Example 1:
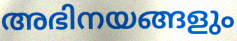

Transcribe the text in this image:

അഭിനയങ്ങളും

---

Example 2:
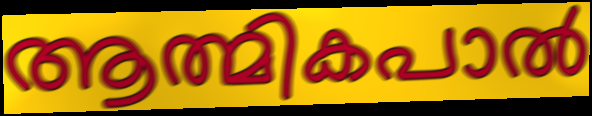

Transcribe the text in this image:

ആത്മികപാൽ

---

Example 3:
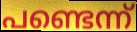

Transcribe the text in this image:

പണ്ടെന്ന്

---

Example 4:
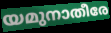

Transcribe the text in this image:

യമുനാതീരേ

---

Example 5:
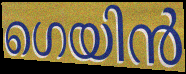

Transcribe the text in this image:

ഗെയിൻ